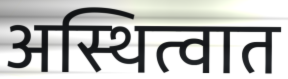
अस्थित्वात